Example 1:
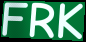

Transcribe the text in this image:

FRK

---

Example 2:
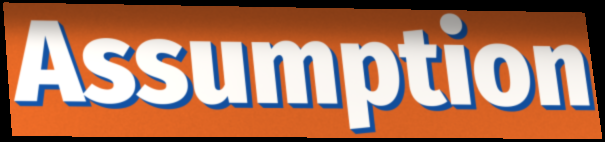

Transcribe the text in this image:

Assumption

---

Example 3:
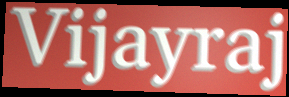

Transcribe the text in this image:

Vijayraj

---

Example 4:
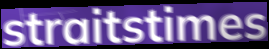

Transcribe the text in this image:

straitstimes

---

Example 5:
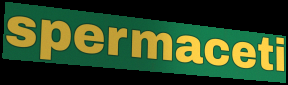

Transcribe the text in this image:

spermaceti